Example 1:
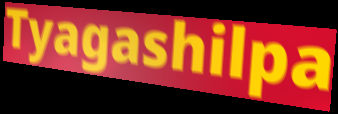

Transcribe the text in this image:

Tyagashilpa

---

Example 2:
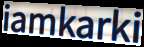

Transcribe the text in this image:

iamkarki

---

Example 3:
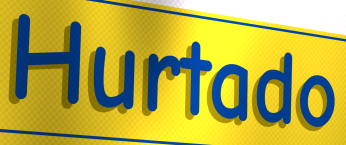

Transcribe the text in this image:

Hurtado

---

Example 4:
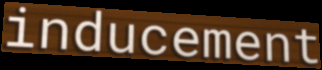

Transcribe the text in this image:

inducement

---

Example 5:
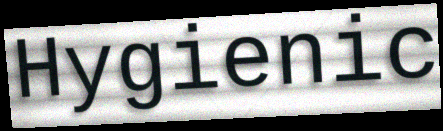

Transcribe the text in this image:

Hygienic